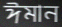
ঈমান